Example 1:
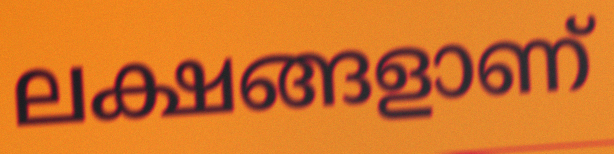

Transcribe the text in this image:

ലക്ഷങ്ങളാണ്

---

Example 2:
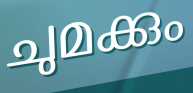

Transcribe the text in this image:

ചുമക്കും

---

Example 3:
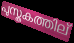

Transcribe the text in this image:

പുസ്തകത്തില്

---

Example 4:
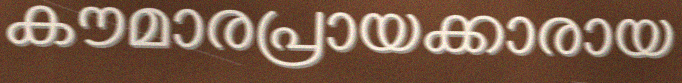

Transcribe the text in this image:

കൗമാരപ്രായക്കാരായ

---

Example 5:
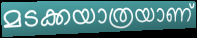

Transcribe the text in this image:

മടക്കയാത്രയാണ്